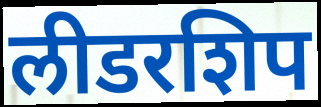
लीडरशिप